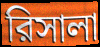
রিসালা